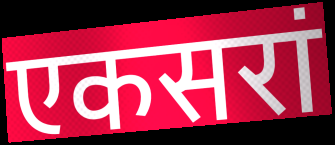
एकसरां